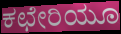
ಕಛೇರಿಯೂ